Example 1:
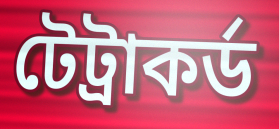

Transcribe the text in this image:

টেট্ৰাকৰ্ড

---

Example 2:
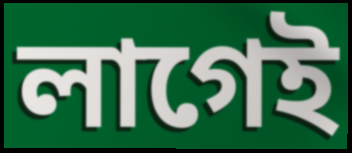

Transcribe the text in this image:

লাগেই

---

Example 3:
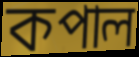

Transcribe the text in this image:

কপাল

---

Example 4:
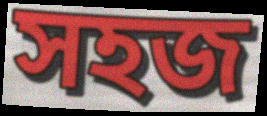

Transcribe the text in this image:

সহজ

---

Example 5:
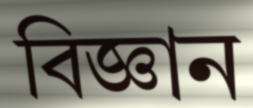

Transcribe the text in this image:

বিজ্ঞান